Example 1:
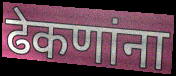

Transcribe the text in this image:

ढेकणांना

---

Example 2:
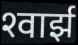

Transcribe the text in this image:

श्वार्झ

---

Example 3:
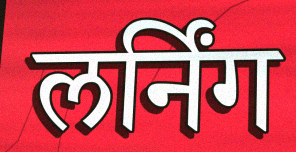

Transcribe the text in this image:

लर्निंग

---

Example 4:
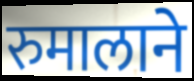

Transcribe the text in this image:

रुमालाने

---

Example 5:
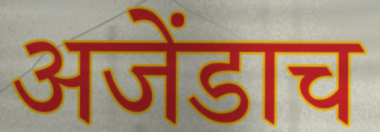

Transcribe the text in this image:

अजेंडाच